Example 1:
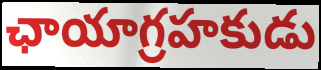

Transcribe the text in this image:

ఛాయాగ్రహకుడు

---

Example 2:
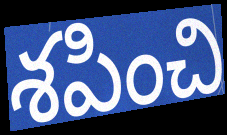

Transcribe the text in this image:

శపించి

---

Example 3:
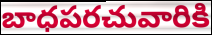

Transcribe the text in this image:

బాధపరచువారికి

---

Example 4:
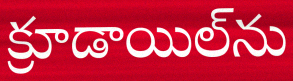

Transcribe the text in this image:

క్రూడాయిల్‌ను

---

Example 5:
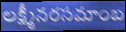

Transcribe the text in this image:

లక్ష్మీనరసమాంబ